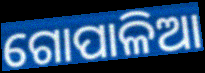
ଗୋପାଳିଆ